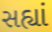
સહ્યાં